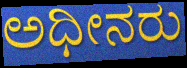
ಅಧೀನರು